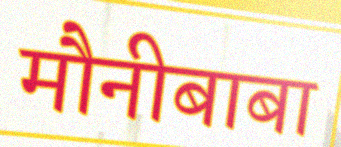
मौनीबाबा